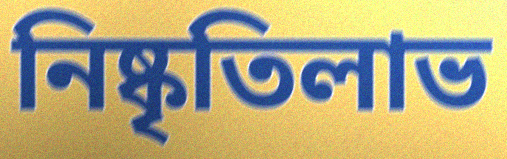
নিষ্কৃতিলাভ